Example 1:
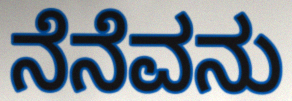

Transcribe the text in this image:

ನೆನೆವನು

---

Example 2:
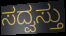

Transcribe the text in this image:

ಸದ್ವಸ್ತು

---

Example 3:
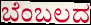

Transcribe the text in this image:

ಬೆಂಬಲದ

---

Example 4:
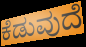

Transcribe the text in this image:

ಕೆಡುವುದೆ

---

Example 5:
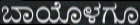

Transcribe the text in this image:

ಬಾಯೊಳಗೂ